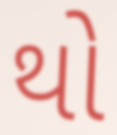
થો